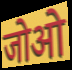
जोओ